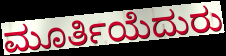
ಮೂರ್ತಿಯೆದುರು